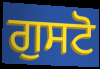
ਗੁਸਟੋ